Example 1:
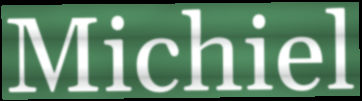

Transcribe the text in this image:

Michiel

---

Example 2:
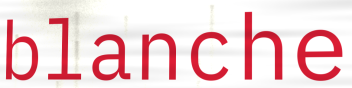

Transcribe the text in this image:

blanche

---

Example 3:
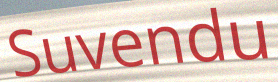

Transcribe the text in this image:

Suvendu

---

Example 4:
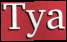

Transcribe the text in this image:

Tya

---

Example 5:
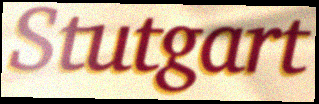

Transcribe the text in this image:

Stutgart